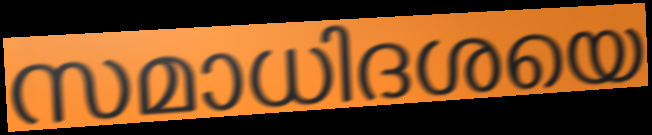
സമാധിദശയെ